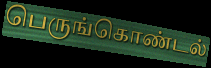
பெருங்கொண்டல்